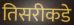
तिसरीकडे